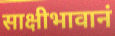
साक्षीभावानं